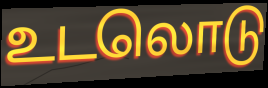
உடலொடு